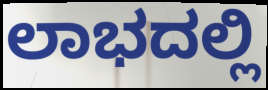
ಲಾಭದಲ್ಲಿ